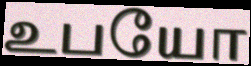
உபயோ